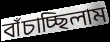
বাঁচাচ্ছিলাম